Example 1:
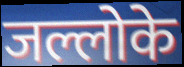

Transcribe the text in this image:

जल्लोके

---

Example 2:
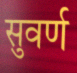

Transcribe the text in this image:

सुवर्ण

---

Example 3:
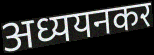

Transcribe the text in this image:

अध्ययनकर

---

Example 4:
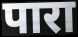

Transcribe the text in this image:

पारा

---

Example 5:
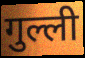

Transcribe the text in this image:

गुल्ली